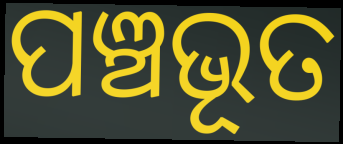
ପଞ୍ଚଭୂତ